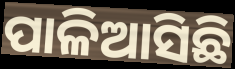
ପାଳିଆସିଛି